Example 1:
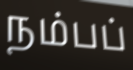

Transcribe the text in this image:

நம்பப்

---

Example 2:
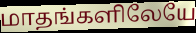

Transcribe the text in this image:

மாதங்களிலேயே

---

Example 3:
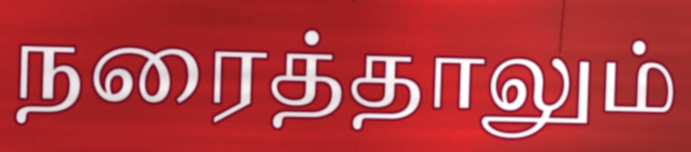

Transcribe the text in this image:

நரைத்தாலும்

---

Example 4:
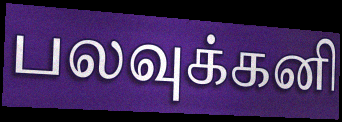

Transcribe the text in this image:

பலவுக்கனி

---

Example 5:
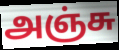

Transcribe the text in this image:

அஞ்சு